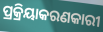
ପ୍ରକ୍ରିୟାକରଣକାରୀ